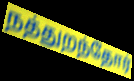
நத்துறந்தோர்